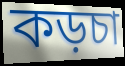
কড়চা